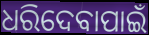
ଧରିଦେବାପାଇଁ